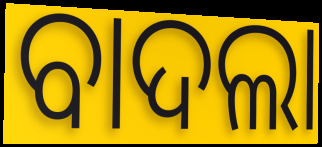
ବାଦଲା